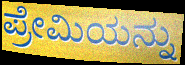
ಪ್ರೇಮಿಯನ್ನು